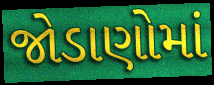
જોડાણોમાં